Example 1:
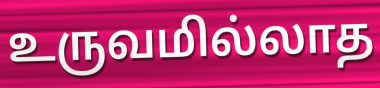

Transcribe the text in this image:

உருவமில்லாத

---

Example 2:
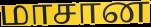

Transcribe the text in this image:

மாசான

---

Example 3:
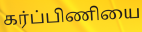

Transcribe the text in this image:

கர்ப்பிணியை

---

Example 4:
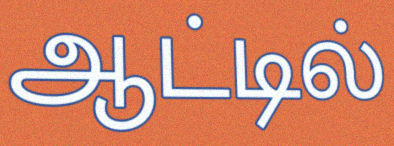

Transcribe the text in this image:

ஆட்டில்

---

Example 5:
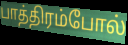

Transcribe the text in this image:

பாத்திரம்போல்